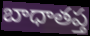
బాధాతప్త